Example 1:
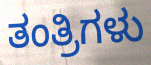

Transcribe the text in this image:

ತಂತ್ರಿಗಳು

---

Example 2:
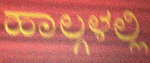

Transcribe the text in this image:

ಹಾಲ್ಗಳಲ್ಲಿ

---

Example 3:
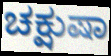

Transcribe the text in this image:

ಚಕ್ಷುಷಾ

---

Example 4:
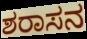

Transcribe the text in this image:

ಶರಾಸನ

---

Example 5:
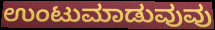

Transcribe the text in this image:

ಉಂಟುಮಾಡುವುವು